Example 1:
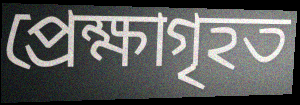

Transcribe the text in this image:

প্ৰেক্ষাগৃহত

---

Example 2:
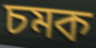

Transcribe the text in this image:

চমক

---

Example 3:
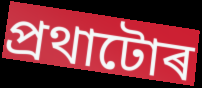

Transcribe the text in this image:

প্ৰথাটোৰ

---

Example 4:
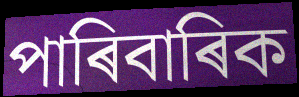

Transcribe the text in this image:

পাৰিবাৰিক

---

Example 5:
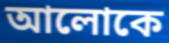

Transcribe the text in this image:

আলোকে